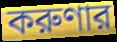
করুণার